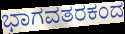
ಭಾಗವತರಕಂದ